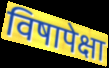
विषापेक्षा